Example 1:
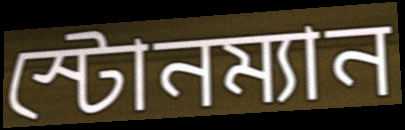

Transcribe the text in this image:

স্টোনম্যান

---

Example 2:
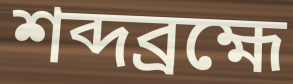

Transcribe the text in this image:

শব্দব্রহ্মে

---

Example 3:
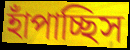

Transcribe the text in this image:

হাঁপাচ্ছিস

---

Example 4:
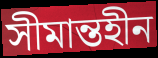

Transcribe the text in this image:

সীমান্তহীন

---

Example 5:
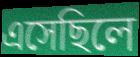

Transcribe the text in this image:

এসেছিলে